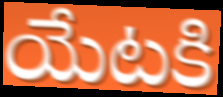
యేటకి